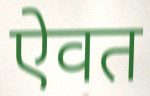
ऐवत